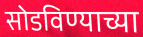
सोडविण्याच्या